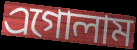
এগোলাম